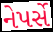
નેપર્સે